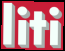
liti